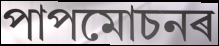
পাপমোচনৰ